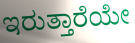
ಇರುತ್ತಾರೆಯೇ